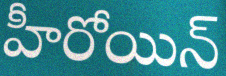
హీరోయిన్